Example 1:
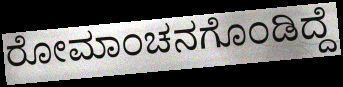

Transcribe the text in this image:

ರೋಮಾಂಚನಗೊಂಡಿದ್ದೆ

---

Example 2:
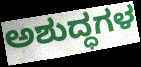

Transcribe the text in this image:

ಅಶುದ್ಧಗಳ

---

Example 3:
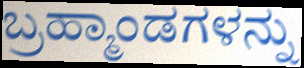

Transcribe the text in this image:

ಬ್ರಹ್ಮಾಂಡಗಳನ್ನು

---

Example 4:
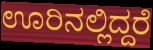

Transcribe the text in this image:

ಊರಿನಲ್ಲಿದ್ದರೆ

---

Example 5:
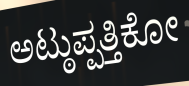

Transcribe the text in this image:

ಅಟ್ಠುಪ್ಪತ್ತಿಕೋ